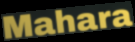
Mahara